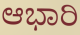
ಆಭಾರಿ